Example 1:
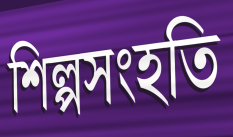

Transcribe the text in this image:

শিল্পসংহতি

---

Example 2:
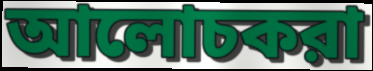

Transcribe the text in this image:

আলোচকরা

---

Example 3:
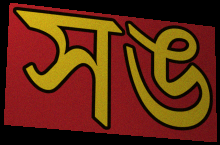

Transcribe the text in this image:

সঙ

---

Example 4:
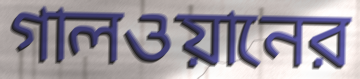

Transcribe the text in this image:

গালওয়ানের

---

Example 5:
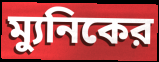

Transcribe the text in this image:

ম্যুনিকের